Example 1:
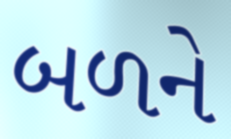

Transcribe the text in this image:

બળને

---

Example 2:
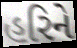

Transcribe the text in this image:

હરિને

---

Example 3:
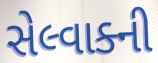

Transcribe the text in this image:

સેલ્વાક્ની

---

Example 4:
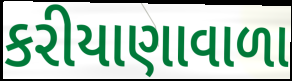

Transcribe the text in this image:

કરીયાણાવાળા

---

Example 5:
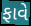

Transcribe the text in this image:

ફાવે